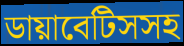
ডায়াবেটিসসহ